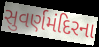
સુવર્ણમંદિરના